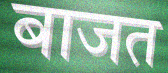
बाजत